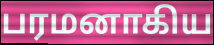
பரமனாகிய